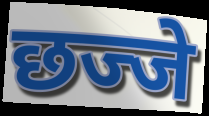
छज्जे